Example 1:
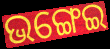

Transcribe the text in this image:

ଭଙ୍ଗେଇ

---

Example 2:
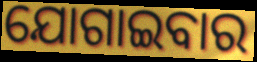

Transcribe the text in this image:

ଯୋଗାଇବାର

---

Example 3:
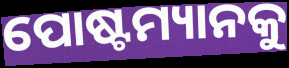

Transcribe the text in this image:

ପୋଷ୍ଟମ୍ୟାନକୁ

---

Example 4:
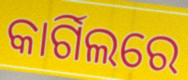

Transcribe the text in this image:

କାର୍ଗିଲରେ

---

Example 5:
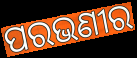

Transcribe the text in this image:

ପରଭଣୀର